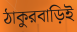
ঠাকুরবাড়িই